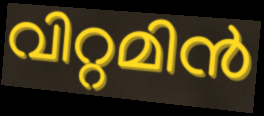
വിറ്റമിൻ